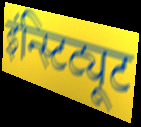
इंन्स्टिट्यूट